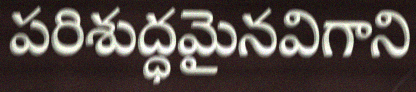
పరిశుద్ధమైనవిగాని